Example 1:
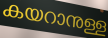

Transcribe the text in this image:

കയറാനുള്ള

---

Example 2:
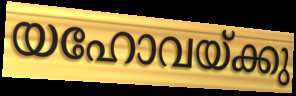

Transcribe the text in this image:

യഹോവയ്ക്കു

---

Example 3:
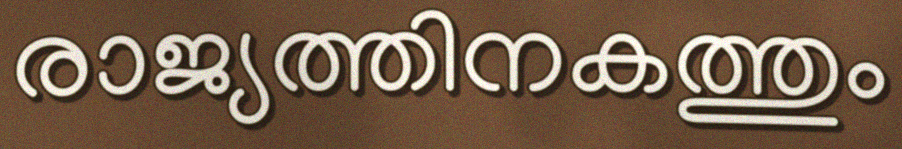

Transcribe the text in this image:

രാജ്യത്തിനകത്തും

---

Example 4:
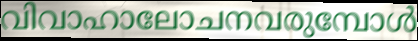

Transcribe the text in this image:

വിവാഹാലോചനവരുമ്പോൾ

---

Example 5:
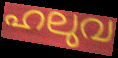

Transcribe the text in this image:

ഹലുവ